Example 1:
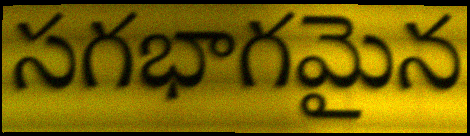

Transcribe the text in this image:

సగభాగమైన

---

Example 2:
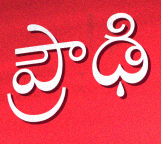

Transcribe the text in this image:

ప్రౌఢి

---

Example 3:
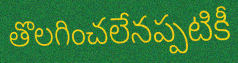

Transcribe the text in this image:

తొలగించలేనప్పటికీ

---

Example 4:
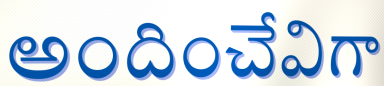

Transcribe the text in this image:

అందించేవిగా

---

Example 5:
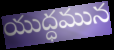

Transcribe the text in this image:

యుద్ధమున